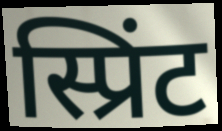
स्प्रिंट